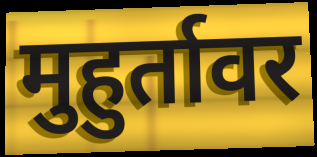
मुहुर्तावर